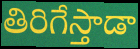
తిరిగేస్తాడా